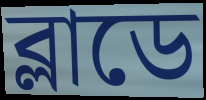
ব্লাডে